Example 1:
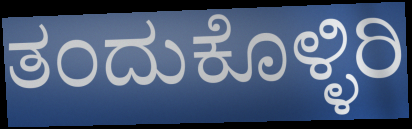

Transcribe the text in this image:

ತಂದುಕೊಳ್ಳಿರಿ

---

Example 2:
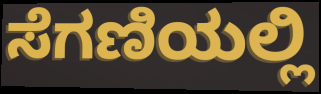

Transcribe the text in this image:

ಸೆಗಣಿಯಲ್ಲಿ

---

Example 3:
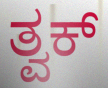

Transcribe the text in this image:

ತ್ವಕ್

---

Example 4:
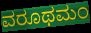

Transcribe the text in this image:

ವರೂಥಮಂ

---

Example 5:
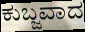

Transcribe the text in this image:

ಕುಬ್ಜವಾದ